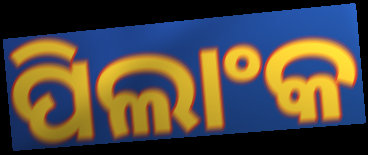
ପିଲାଂକ